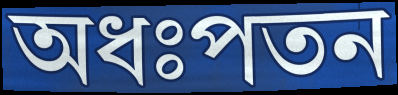
অধঃপতন